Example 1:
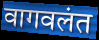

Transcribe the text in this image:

वागवलंत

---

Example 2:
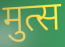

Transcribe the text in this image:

मुत्स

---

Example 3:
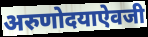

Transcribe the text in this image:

अरुणोदयाऐवजी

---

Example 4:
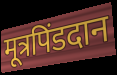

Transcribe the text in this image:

मूत्रपिंडदान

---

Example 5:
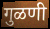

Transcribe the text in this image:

गुळणी